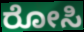
ರೋಸಿ